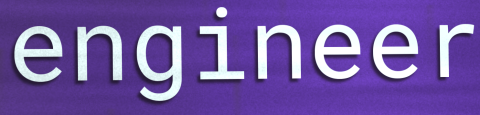
engineer